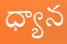
ధ్యాన